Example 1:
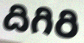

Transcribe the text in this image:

దిగిరి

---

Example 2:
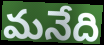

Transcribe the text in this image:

మనేది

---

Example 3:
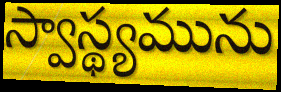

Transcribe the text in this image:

స్వాస్థ్యమును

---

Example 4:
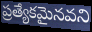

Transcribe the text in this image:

ప్రత్యేకమైనవని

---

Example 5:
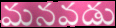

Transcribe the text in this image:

మనవడు